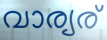
വാര്യര്